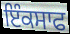
ਇੰਕਸਾਫ